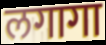
लगागा